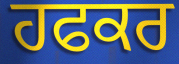
ਹਫਕਰ